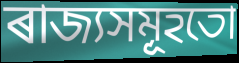
ৰাজ্যসমূহতো